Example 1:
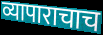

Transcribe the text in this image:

व्यापाराचाच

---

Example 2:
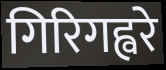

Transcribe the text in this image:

गिरिगह्वरे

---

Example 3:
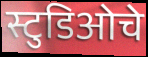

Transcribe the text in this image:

स्टुडिओचे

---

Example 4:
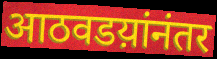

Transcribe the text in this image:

आठवडय़ांनंतर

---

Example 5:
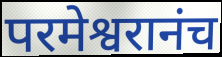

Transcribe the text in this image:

परमेश्वरानंच